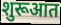
शुरूआत